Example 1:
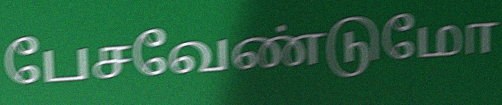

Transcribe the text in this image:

பேசவேண்டுமோ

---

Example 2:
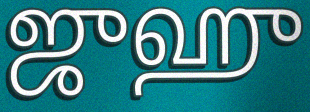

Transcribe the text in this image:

ஜுஹு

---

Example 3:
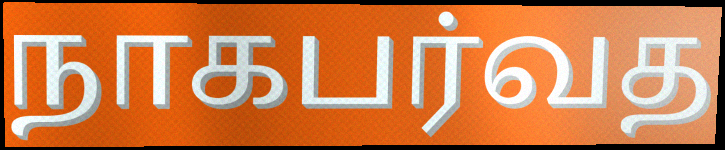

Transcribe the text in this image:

நாகபர்வத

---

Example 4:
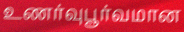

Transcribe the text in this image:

உணர்வுபூர்வமான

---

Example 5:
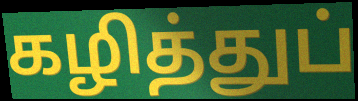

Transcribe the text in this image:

கழித்துப்